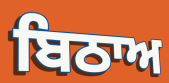
ਬਿਠਾਅ